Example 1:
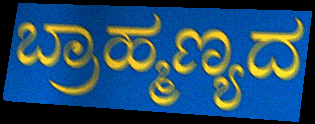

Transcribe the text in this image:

ಬ್ರಾಹ್ಮಣ್ಯದ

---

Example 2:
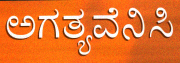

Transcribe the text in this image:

ಅಗತ್ಯವೆನಿಸಿ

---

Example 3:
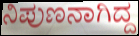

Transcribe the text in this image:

ನಿಪುಣನಾಗಿದ್ದ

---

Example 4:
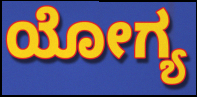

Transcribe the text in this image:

ಯೋಗ್ಯ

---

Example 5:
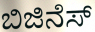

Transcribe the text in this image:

ಬಿಜಿನೆಸ್